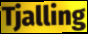
Tjalling